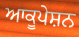
ਆਕੂਪੇਸ਼ਨ